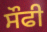
ਸੌਫੀ